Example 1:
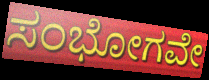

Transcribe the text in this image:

ಸಂಭೋಗವೇ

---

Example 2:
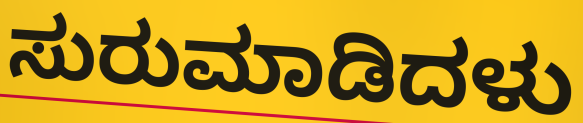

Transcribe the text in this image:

ಸುರುಮಾಡಿದಳು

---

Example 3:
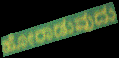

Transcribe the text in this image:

ಹೋರಾಡುವುದು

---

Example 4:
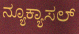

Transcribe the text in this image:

ನ್ಯೂಕ್ಯಾಸಲ್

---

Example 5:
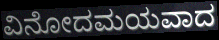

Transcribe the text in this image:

ವಿನೋದಮಯವಾದ